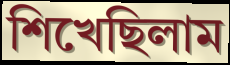
শিখেছিলাম